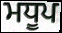
ਮਧੂਪ